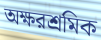
অক্ষরশ্রমিক